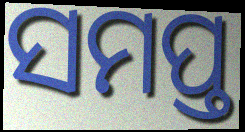
ସମପ୍ତ